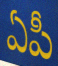
ఏపీ